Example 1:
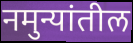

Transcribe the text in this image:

नमुन्यांतील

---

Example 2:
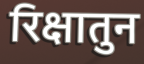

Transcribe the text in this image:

रिक्षातुन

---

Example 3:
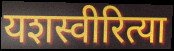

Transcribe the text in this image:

यशस्वीरित्या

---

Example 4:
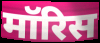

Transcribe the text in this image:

मॉरिस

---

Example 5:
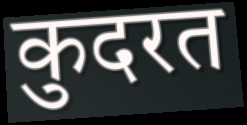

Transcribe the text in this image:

कुदरत